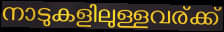
നാടുകളിലുള്ളവര്ക്ക്